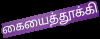
கையைத்தூக்கி